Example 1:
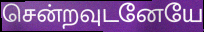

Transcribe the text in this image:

சென்றவுடனேயே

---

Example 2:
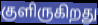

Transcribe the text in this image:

குளிருகிறது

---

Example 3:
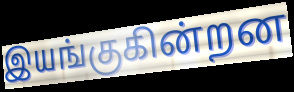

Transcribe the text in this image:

இயங்குகின்றன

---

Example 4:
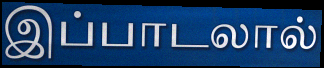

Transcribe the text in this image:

இப்பாடலால்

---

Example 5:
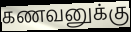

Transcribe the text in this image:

கணவனுக்கு